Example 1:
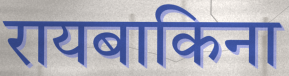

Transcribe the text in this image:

रायबाकिना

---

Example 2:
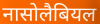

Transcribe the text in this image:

नासोलैबियल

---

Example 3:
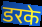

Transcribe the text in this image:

डरके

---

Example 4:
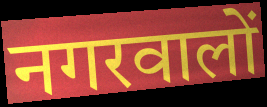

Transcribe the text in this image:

नगरवालों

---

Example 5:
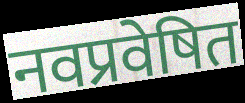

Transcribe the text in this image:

नवप्रवेषित